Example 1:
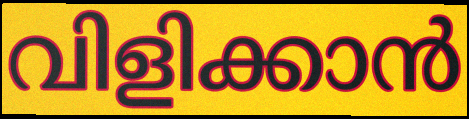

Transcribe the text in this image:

വിളിക്കാൻ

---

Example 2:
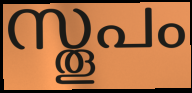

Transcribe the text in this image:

സ്തൂപം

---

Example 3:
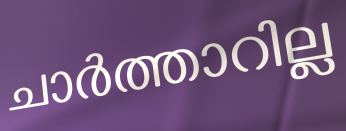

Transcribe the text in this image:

ചാർത്താറില്ല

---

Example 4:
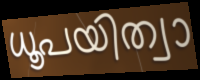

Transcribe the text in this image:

ധൂപയിത്വാ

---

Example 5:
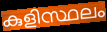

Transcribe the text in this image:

കുളിസ്ഥലം